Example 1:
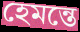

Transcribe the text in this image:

হেমন্তে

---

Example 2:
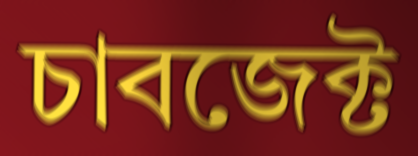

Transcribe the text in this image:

চাবজেক্ট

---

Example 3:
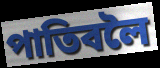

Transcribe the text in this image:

পাতিবলৈ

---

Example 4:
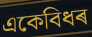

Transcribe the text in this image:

একেবিধৰ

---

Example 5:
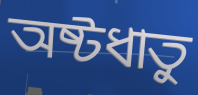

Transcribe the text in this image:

অষ্টধাতু